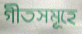
গীতসমূহে